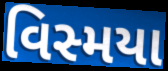
વિસ્મયા